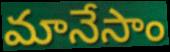
మానేసాం